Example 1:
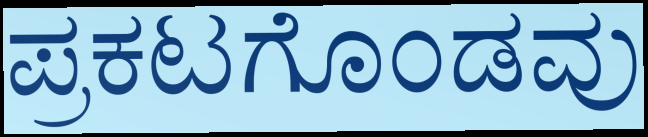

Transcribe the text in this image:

ಪ್ರಕಟಗೊಂಡವು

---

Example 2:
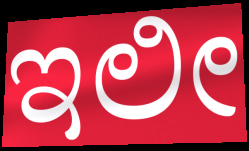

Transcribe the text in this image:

ಇಲೀ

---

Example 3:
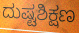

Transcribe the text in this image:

ದುಷ್ಟಶಿಕ್ಷಣ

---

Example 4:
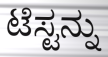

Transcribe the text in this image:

ಟೆಸ್ಟನ್ನು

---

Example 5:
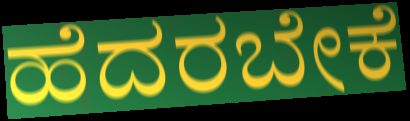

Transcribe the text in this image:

ಹೆದರಬೇಕೆ